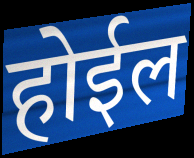
होईल